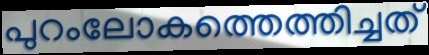
പുറംലോകത്തെത്തിച്ചത്